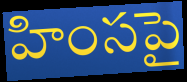
హింసపై